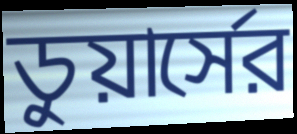
ডুয়ার্সের